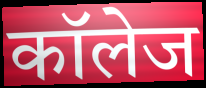
कॉलेज